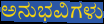
ಅನುಭವಿಗಳು